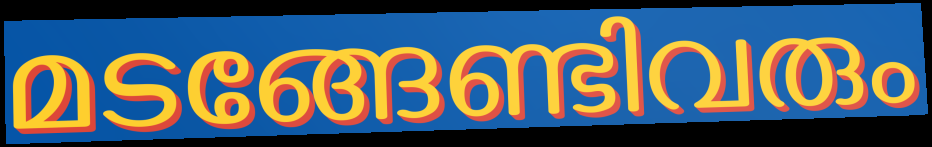
മടങ്ങേണ്ടിവരും